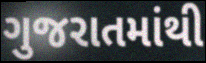
ગુજરાતમાંથી